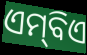
ଏମ୍‌ବିଏ